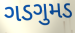
ગડગુમડ